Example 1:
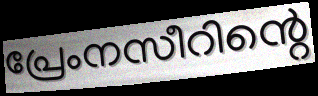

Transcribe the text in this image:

പ്രേംനസീറിന്റെ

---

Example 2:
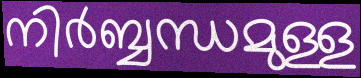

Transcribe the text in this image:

നിർബ്ബന്ധമുള്ള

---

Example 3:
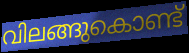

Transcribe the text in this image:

വിലങ്ങുകൊണ്ട്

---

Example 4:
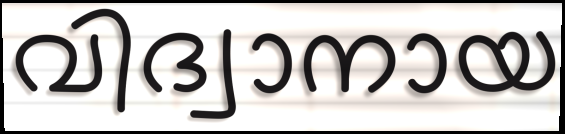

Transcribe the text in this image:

വിദ്വാനായ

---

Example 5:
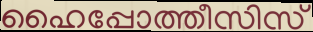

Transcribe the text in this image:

ഹൈപ്പോത്തീസിസ്